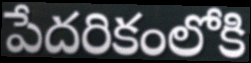
పేదరికంలోకి